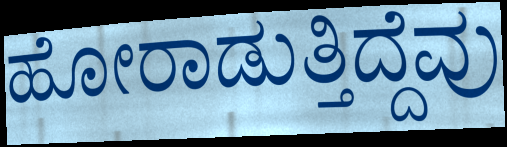
ಹೋರಾಡುತ್ತಿದ್ದೆವು